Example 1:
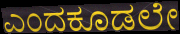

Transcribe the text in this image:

ಎಂದಕೂಡಲೇ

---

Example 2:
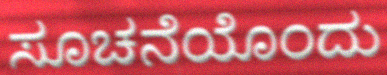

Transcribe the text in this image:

ಸೂಚನೆಯೊಂದು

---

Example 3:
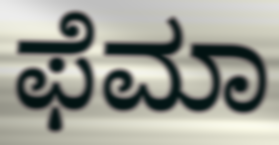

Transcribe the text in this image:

ಫೆಮಾ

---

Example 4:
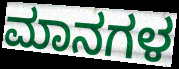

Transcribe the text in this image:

ಮಾನಗಳ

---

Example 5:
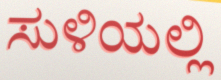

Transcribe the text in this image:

ಸುಳಿಯಲ್ಲಿ